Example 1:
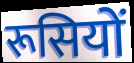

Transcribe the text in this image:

रूसियों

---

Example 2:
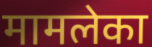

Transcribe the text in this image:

मामलेका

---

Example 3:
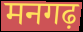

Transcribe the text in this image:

मनगढ़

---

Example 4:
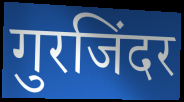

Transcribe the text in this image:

गुरजिंदर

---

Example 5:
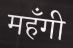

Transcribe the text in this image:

महँगी